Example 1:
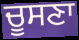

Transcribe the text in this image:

ਚੂਸਣਾ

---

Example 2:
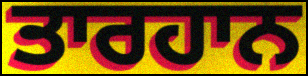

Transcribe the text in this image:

ਤਾਰਹਾਨ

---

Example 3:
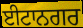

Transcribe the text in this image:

ਈਟਾਨਗਰ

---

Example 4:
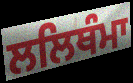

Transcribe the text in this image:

ਲਲਿਥੰਮਾ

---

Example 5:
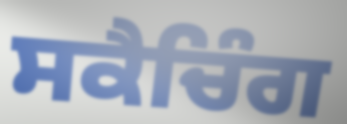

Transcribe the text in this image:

ਸਕੈਚਿੰਗ